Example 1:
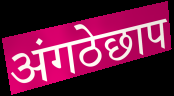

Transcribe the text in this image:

अंगठेछाप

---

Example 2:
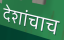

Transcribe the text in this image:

देशांचाच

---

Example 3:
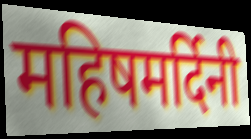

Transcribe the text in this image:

महिषमर्दिनी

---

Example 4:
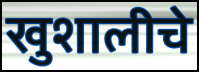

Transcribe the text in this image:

खुशालीचे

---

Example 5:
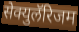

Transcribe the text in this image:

सेक्युलॅरिजम